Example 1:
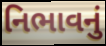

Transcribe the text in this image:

નિભાવનું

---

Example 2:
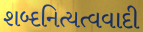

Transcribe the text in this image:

શબ્દનિત્યત્વવાદી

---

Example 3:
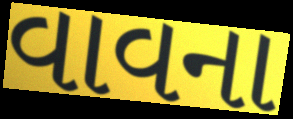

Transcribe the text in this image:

વાવના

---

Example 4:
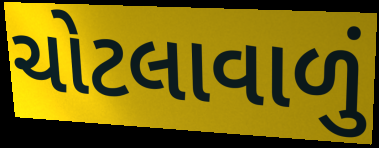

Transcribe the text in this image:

ચોટલાવાળું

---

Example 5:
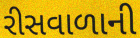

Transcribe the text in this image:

રીસવાળાની